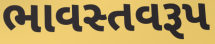
ભાવસ્તવરૂપ